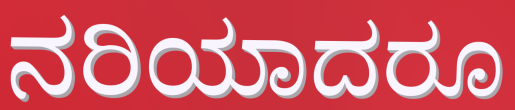
ನರಿಯಾದರೂ